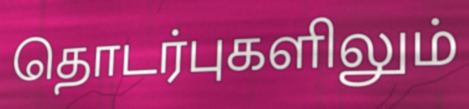
தொடர்புகளிலும்